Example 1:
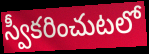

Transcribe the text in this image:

స్వీకరించుటలో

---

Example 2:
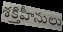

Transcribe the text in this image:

శక్తిహీనులు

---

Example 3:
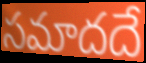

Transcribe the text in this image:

సమాదదే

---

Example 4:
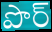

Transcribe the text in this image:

పొర్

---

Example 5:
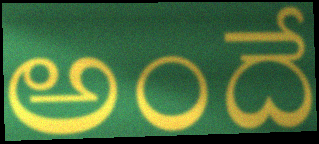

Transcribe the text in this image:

అందే